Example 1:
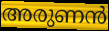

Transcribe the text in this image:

അരുണൻ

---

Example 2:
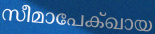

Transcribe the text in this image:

സീമാപേക്ഖായ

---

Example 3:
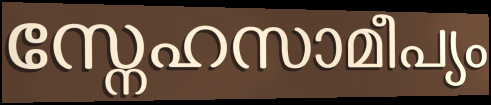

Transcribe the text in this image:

സ്നേഹസാമീപ്യം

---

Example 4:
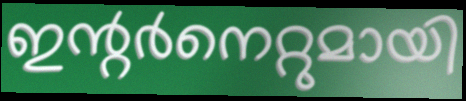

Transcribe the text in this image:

ഇന്റർനെറ്റുമായി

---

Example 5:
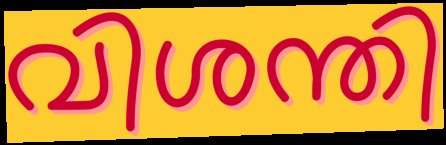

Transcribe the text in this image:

വിശന്തി